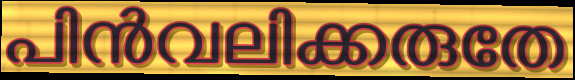
പിൻവലിക്കരുതേ